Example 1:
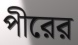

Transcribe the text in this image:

পীরের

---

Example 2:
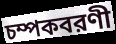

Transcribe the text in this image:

চম্পকবরণী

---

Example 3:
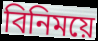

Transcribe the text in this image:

বিনিময়ে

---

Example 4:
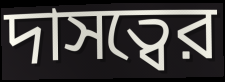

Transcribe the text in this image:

দাসত্বের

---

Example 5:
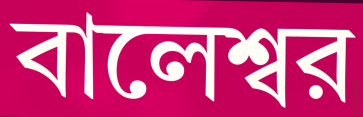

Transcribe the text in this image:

বালেশ্বর